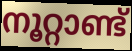
നൂറ്റാണ്ട്